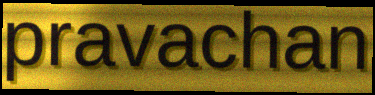
pravachan